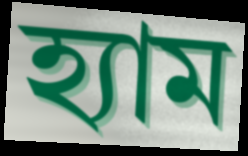
হ্যাম